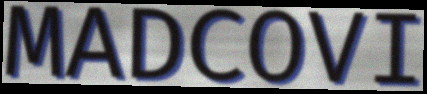
MADCOVI